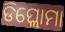
ଡିପ୍ଲୋମା